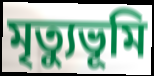
মৃত্যুভূমি